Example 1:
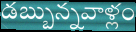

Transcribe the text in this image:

డబ్బున్నవాళ్లం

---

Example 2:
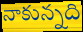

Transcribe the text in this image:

నాకున్నది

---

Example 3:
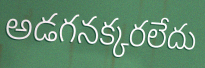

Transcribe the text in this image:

అడగనక్కరలేదు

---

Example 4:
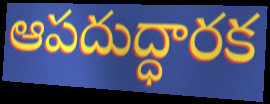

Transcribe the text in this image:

ఆపదుద్ధారక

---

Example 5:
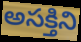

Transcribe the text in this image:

అసక్తిని